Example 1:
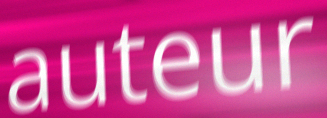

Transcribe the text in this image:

auteur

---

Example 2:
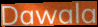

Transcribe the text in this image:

Dawala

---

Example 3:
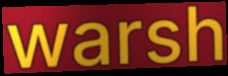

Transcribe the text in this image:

warsh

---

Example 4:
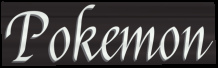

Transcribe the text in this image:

Pokemon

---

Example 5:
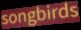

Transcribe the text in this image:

songbirds